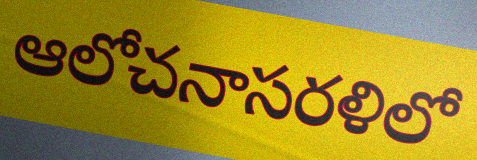
ఆలోచనాసరళిలో